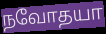
நவோதயா